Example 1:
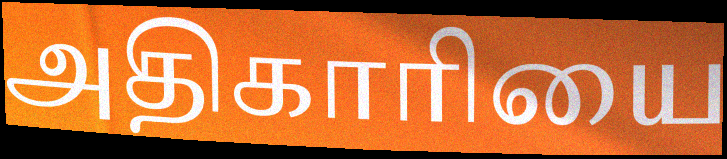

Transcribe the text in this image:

அதிகாரியை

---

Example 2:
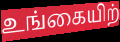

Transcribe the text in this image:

உங்கையிற்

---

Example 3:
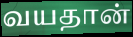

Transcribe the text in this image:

வயதான்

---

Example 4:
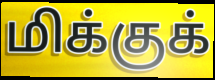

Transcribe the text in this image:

மிக்குக்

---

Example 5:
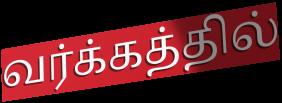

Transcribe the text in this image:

வர்க்கத்தில்